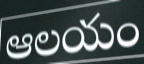
ఆలయం